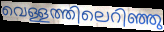
വെള്ളത്തിലെറിഞ്ഞു